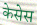
केसेस